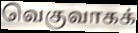
வெகுவாகக்